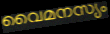
വൈമനസ്യം